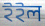
ইইল